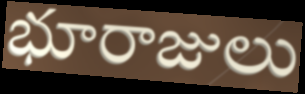
భూరాజులు